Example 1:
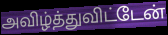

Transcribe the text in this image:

அவிழ்த்துவிட்டேன்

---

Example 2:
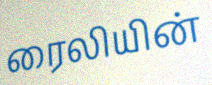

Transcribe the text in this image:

ரைலியின்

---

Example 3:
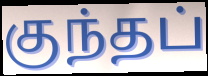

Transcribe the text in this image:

குந்தப்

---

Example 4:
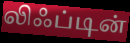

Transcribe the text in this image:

லிஃப்டின்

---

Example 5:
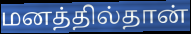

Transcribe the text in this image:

மனத்தில்தான்